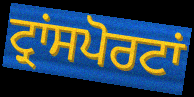
ਟ੍ਰਾਂਸਪੋਰਟਾਂ